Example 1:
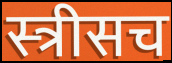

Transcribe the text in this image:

स्त्रीसच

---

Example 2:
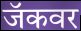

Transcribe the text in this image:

जॅकवर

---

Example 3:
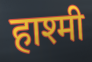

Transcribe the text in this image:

हाश्मी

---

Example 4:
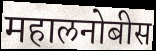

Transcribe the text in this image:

महालनोबीस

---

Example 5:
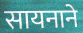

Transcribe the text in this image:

सायनाने